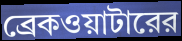
ব্রেকওয়াটারের